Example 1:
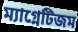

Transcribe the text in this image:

ম্যাগ্নেটিজম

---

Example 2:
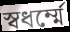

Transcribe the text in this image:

স্বধর্ম্মে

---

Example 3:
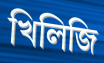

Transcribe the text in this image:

খিলিজি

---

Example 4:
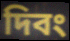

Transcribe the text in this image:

দিবং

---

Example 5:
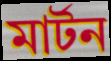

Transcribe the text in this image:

মার্টন